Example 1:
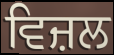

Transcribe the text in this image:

ਵਿਜ਼ਲ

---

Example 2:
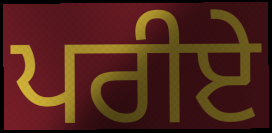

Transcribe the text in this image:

ਪਰੀਏ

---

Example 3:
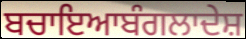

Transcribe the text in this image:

ਬਚਾਇਆਬੰਗਲਾਦੇਸ਼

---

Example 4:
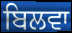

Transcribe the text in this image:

ਬਿਲਵਾ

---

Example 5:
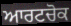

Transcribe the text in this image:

ਆਰਟਚੋਕ